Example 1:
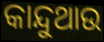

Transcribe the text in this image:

କାନ୍ଦୁଥାଉ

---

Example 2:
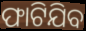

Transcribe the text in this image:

ଫାଟିଯିବ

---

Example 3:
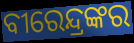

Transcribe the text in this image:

ବୀରେନ୍ଦ୍ରଙ୍କର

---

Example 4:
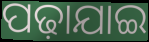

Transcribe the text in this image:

ପଢ଼ାଯାଇ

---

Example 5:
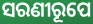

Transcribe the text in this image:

ସରଣୀରୂପେ